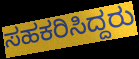
ಸಹಕರಿಸಿದ್ದರು